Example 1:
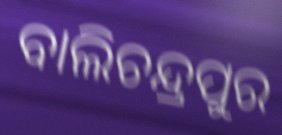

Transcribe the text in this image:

ବାଲିଚନ୍ଦ୍ରପୁର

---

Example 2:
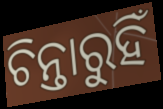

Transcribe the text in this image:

ଚିନ୍ତାରୁହିଁ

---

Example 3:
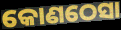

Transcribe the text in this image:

କୋଣଠେସା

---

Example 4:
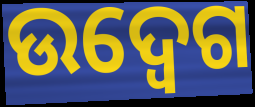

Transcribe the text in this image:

ଉଦ୍ବେଗ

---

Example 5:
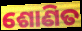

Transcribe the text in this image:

ଶୋଣିତ